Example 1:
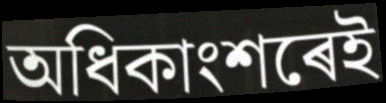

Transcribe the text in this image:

অধিকাংশৰেই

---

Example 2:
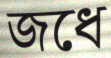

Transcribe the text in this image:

জধে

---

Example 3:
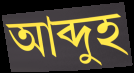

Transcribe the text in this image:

আব্দুহ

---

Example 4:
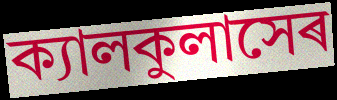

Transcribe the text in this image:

ক্যালকুলাসেৰ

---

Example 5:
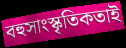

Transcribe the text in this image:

বহুসাংস্কৃতিকতাই